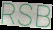
RSB